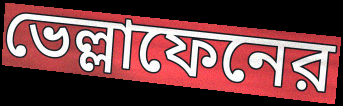
ভেল্লাফেনের